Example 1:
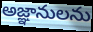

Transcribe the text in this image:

అజ్ఞానులను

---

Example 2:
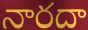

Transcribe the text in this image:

నారదా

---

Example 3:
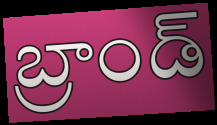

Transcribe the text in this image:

బ్రాండ్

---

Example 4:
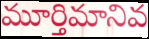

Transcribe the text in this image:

మూర్తిమానివ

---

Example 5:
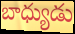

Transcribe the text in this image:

బాధ్యుడు